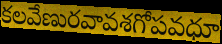
కలవేణురవావశగోపవధూ